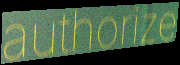
authorize